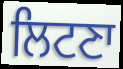
ਲਿਟਣਾ